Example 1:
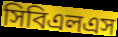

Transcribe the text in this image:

সিবিএলএস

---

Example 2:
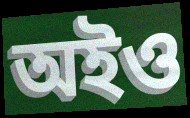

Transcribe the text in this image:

অইও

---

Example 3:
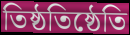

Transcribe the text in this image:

তিষ্ঠতিষ্ঠেতি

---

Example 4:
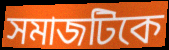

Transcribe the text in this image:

সমাজটিকে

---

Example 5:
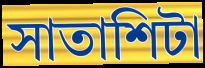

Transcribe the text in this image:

সাতাশিটা